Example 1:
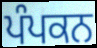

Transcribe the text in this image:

ਪੰਪਕਨ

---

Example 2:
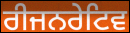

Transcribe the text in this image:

ਰੀਜਨਰੇਟਿਵ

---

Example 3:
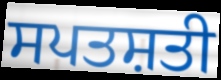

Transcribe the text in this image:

ਸਪਤਸ਼ਤੀ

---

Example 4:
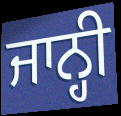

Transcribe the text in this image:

ਜਾਨ੍ਹੀ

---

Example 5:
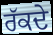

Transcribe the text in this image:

ਰੱਕਦੇ